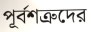
পূর্বশত্রুদের